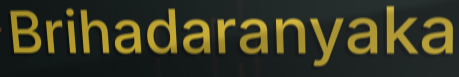
Brihadaranyaka